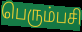
பெரும்பசி